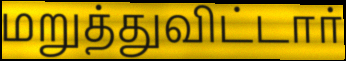
மறுத்துவிட்டார்